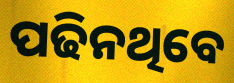
ପଢିନଥିବେ